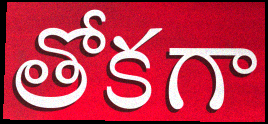
తోకగా